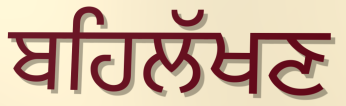
ਬਹਿਲੱਖਣ